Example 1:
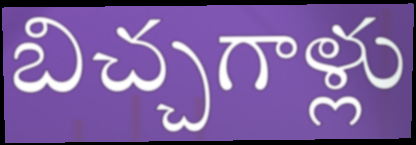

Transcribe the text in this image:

బిచ్చగాళ్లు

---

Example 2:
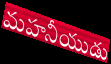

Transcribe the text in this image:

మహనీయుడు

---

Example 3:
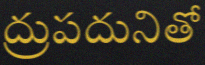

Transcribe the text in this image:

ద్రుపదునితో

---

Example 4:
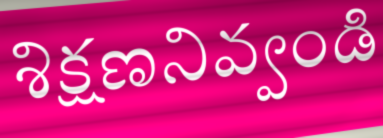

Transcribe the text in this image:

శిక్షణనివ్వండి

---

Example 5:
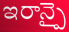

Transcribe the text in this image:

ఇరాన్పై